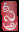
స్త్రీ